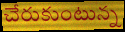
చేరుకుంటున్న